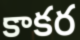
కాకర